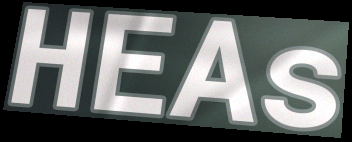
HEAs